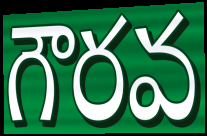
గౌరవ